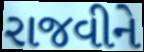
રાજવીને